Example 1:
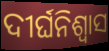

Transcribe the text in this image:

ଦୀର୍ଘନିଶ୍ୱାସ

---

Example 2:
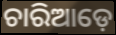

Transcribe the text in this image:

ଚାରିଆଡ଼େ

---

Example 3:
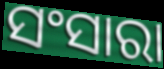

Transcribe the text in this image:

ସଂସାରା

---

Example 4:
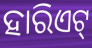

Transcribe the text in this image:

ହାରିଏଟ୍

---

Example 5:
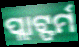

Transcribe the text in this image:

ପ୍ଲାଟ୍ଫର୍ମ